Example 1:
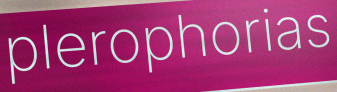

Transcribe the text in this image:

plerophorias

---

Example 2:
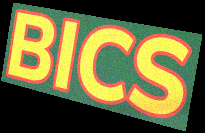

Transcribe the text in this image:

BICS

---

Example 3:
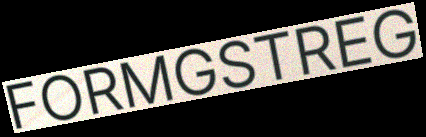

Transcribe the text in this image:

FORMGSTREG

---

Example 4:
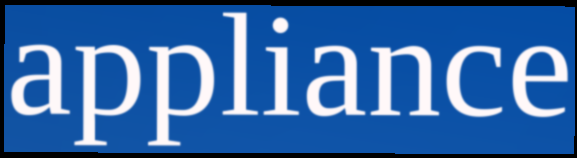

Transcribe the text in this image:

appliance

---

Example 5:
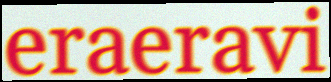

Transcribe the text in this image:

eraeravi